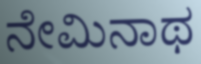
ನೇಮಿನಾಥ